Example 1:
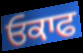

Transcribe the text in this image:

ਓਕਾਫ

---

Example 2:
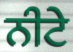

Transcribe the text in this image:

ਨੀਟੇ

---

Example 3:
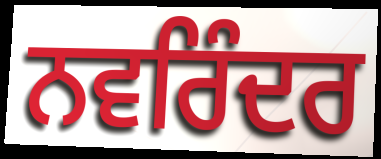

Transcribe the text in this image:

ਨਵਰਿੰਦਰ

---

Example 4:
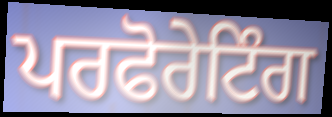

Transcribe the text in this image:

ਪਰਫੋਰੇਟਿੰਗ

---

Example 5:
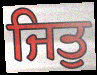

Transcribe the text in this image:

ਜਿਤੁ